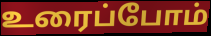
உரைப்போம்